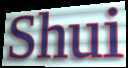
Shui